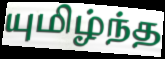
யுமிழ்ந்த